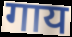
गाय